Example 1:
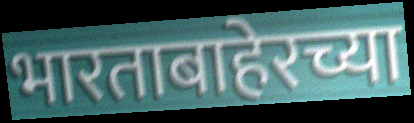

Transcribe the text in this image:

भारताबाहेरच्या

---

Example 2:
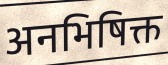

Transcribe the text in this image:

अनभिषिक्त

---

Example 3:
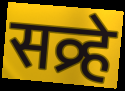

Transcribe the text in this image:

सव्र्हे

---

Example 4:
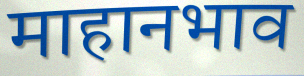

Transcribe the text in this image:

माहानभाव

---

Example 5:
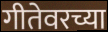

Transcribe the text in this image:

गीतेवरच्या